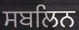
ਸਬਲਿਨ